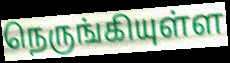
நெருங்கியுள்ள